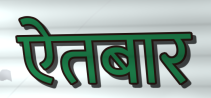
ऐतबार